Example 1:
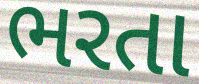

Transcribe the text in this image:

ભરતા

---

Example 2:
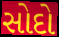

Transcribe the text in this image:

સોદો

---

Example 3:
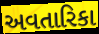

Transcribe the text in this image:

અવતારિકા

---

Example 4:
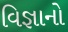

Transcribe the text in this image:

વિજ્ઞાનો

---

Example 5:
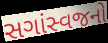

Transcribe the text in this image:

સગાંસ્વજનો